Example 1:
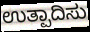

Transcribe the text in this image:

ಉತ್ಪಾದಿಸು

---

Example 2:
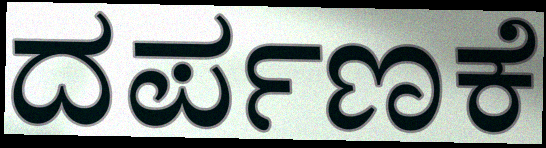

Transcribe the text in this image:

ದರ್ಪಣಕೆ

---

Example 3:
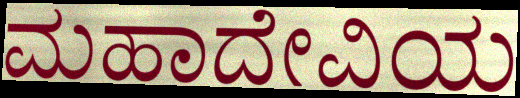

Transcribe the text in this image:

ಮಹಾದೇವಿಯ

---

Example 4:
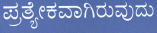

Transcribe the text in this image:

ಪ್ರತ್ಯೇಕವಾಗಿರುವುದು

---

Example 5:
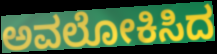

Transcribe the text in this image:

ಅವಲೋಕಿಸಿದ